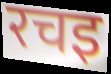
रचइ